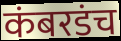
कंबरडंच